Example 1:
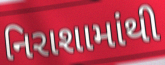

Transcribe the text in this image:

નિરાશામાંથી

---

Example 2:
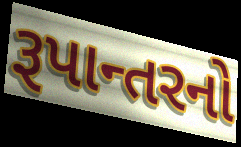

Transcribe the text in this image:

રૂપાન્તરનો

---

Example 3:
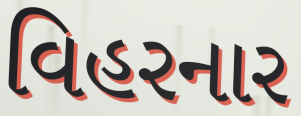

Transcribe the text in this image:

વિહરનાર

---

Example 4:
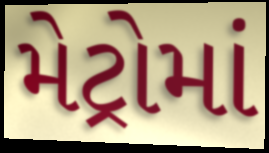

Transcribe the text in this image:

મેટ્રોમાં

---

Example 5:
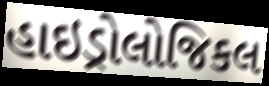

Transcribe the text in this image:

હાઇડ્રોલોજિકલ